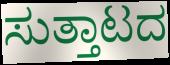
ಸುತ್ತಾಟದ